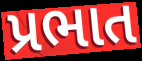
પ્રભાત